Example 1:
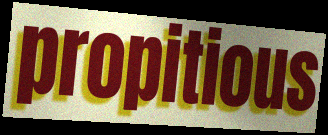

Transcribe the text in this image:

propitious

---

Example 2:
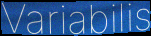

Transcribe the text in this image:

Variabilis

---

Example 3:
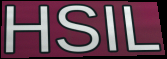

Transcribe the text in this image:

HSIL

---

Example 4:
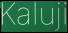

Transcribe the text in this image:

Kaluji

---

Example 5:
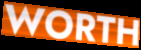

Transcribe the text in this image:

WORTH